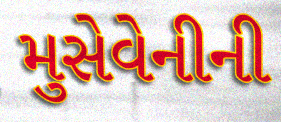
મુસેવેનીની